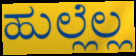
ಹುಲ್ಲೆಲ್ಲ